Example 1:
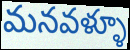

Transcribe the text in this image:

మనవళ్ళూ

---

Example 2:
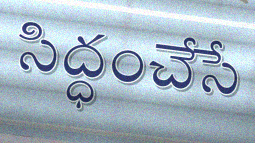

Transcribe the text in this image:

సిద్ధంచేసే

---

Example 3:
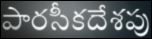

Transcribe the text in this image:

పారసీకదేశపు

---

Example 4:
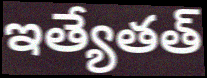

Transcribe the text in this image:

ఇత్యేతత్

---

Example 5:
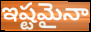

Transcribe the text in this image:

ఇష్టమైనా